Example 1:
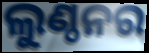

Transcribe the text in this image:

ଲୁଣ୍ଠନର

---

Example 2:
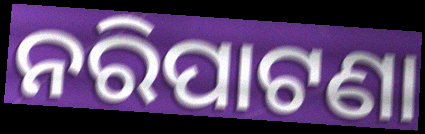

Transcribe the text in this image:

ନରିପାଟଣା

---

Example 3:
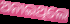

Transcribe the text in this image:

ଅନାଇଥିଲେ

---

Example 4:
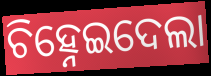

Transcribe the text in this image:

ଚିହ୍ନେଇଦେଲା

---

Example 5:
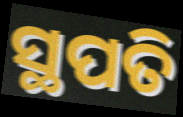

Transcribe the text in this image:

ସ୍ଥପତି